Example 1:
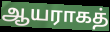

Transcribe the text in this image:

ஆயராகத்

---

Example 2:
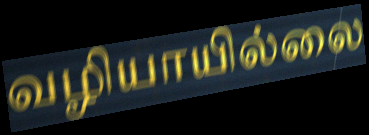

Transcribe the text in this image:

வழியாயில்லை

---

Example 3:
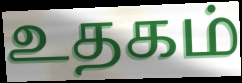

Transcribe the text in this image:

உதகம்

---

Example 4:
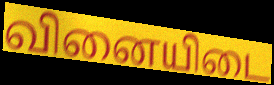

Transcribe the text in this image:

வினையிடை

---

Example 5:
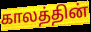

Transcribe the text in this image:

காலத்தின்